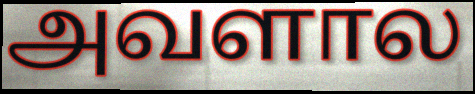
அவளால